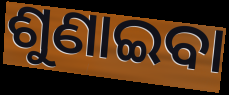
ଶୁଣାଇବା